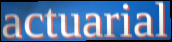
actuarial